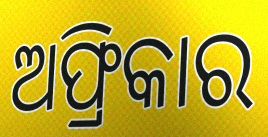
ଅଫ୍ରିକାର